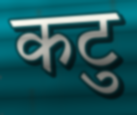
कटु